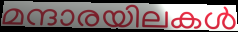
മന്ദാരയിലകൾ